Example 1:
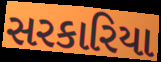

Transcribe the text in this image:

સરકારિયા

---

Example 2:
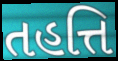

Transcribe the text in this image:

તહત્તિ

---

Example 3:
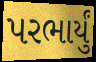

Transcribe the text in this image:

પરભાર્યું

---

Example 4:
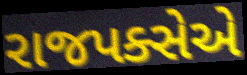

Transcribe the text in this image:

રાજપક્સેએ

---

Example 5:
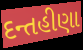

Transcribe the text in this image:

દન્તહીણા